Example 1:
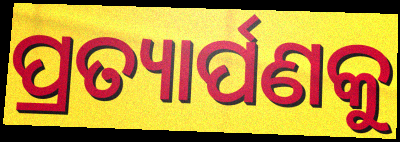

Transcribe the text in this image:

ପ୍ରତ୍ୟାର୍ପଣକୁ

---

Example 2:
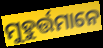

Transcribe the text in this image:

ମୁହୁର୍ତ୍ତମାନେ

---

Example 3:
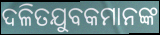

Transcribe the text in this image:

ଦଳିତଯୁବକମାନଙ୍କ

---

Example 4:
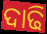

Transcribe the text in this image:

ଦାଢି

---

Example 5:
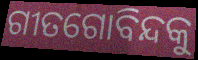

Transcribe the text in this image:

ଗୀତଗୋବିନ୍ଦକୁ